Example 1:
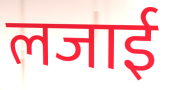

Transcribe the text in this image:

लजाई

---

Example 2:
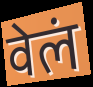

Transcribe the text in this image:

वेलं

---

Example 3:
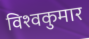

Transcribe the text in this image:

विश्वकुमार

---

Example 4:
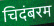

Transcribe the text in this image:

चिदंबरम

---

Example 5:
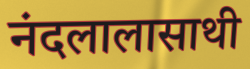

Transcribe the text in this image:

नंदलालासाथी